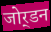
जोर्डन